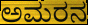
ಅಮರನ